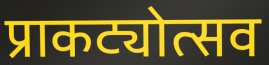
प्राकट्योत्सव